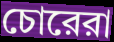
চোরেরা